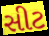
સીટ